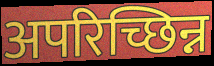
अपरिच्छिन्न